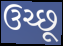
ઉચ્છૂ